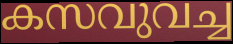
കസവുവച്ച